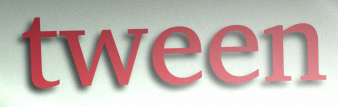
tween